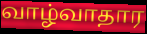
வாழ்வாதார